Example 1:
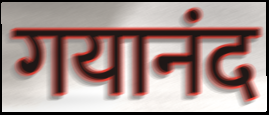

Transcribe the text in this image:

गयानंद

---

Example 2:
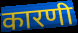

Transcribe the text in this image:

कारणी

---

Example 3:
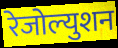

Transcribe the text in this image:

रेजोल्युशन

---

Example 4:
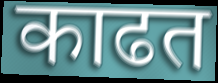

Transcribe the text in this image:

काढत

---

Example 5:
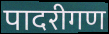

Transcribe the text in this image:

पादरीगण